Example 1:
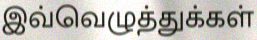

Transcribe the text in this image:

இவ்வெழுத்துக்கள்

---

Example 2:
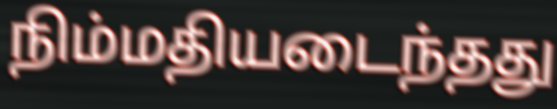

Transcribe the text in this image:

நிம்மதியடைந்தது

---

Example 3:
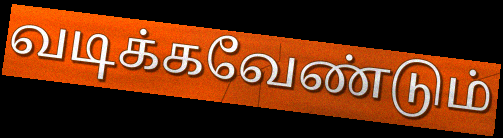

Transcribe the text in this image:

வடிக்கவேண்டும்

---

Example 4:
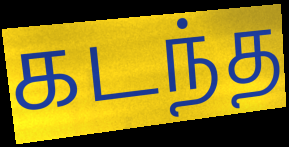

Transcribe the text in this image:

கடந்த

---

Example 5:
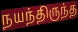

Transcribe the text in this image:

நயந்திருந்த